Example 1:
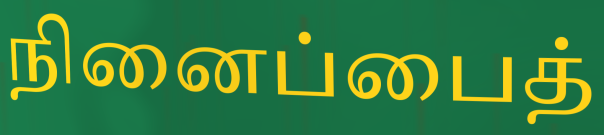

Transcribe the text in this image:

நினைப்பைத்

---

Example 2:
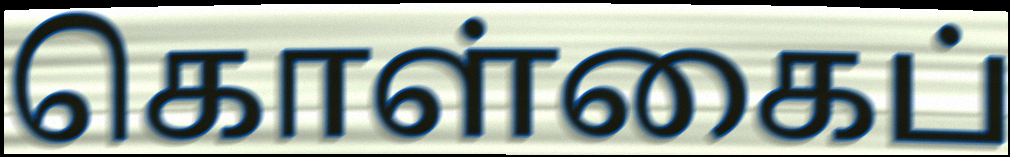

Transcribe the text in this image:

கொள்கைப்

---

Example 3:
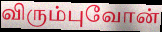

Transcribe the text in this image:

விரும்புவோன்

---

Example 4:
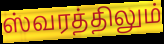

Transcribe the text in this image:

ஸ்வரத்திலும்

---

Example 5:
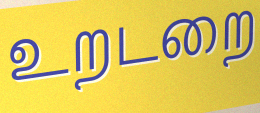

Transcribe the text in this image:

உறடறை